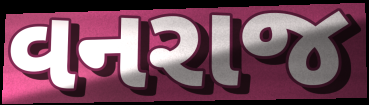
વનરાજ